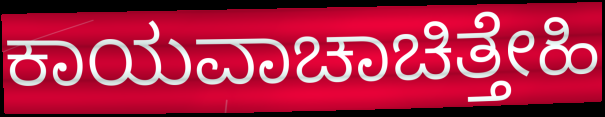
ಕಾಯವಾಚಾಚಿತ್ತೇಹಿ